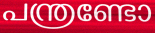
പന്ത്രണ്ടോ